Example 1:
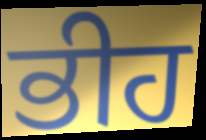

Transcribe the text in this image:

ਭੀਹ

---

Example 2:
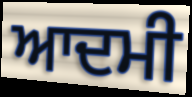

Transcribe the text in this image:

ਆਦਮੀ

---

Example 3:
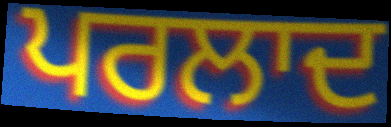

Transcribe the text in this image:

ਪਰਲਾਦ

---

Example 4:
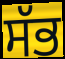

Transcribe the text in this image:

ਸੱਭ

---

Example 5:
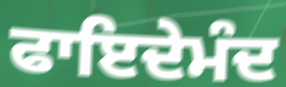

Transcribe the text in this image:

ਫਾਇਦੇਮੰਦ